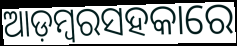
ଆଡ଼ମ୍ବରସହକାରେ